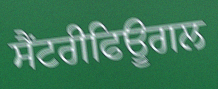
ਸੈਂਟਰੀਫਿਊਗਲ